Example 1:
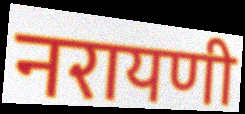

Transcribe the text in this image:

नरायणी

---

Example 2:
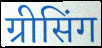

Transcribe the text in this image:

ग्रीसिंग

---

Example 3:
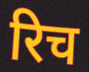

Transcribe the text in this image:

रिच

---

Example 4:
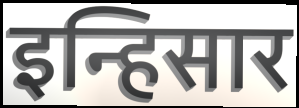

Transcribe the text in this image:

इन्हिसार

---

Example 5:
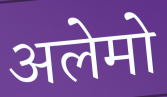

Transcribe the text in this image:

अलेमो